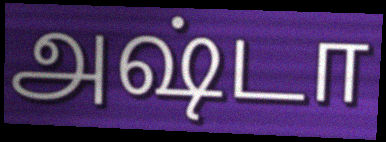
அஷ்டா